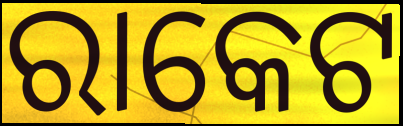
ରାକେଟ